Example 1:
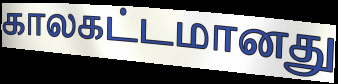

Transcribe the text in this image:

காலகட்டமானது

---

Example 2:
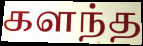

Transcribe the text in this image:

களந்த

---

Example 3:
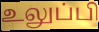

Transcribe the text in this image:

உலுப்பி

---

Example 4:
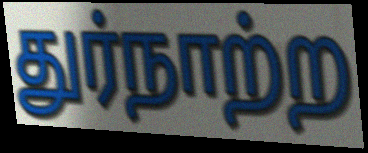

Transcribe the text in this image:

துர்நாற்ற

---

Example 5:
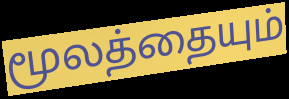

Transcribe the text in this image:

மூலத்தையும்